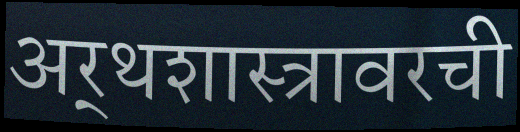
अर्थशास्त्रावरची